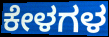
ಕೇಳಗಳ